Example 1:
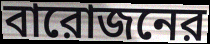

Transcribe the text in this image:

বারোজনের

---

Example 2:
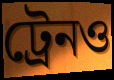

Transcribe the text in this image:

ট্রেনও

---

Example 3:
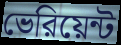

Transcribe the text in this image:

ভেরিয়েন্ট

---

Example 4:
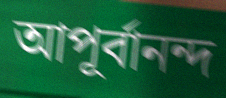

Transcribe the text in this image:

আপূর্বানন্দ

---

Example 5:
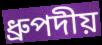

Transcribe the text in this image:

ধ্রুপদীয়